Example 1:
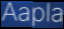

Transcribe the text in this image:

Aapla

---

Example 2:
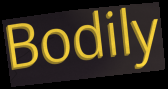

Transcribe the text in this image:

Bodily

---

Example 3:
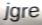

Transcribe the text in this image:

jgre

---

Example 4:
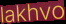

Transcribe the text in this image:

lakhvo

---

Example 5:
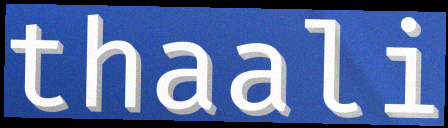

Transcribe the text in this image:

thaali